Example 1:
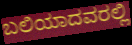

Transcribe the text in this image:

ಬಲಿಯಾದವರಲ್ಲಿ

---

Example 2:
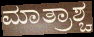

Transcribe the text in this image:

ಮಾತ್ರಾಶ್ಚ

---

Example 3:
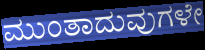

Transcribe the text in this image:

ಮುಂತಾದುವುಗಳೇ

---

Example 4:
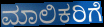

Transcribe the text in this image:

ಮಾಲಿಕರಿಗೆ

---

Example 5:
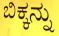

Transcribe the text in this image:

ಬಿಕ್ಕನ್ನು